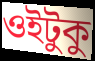
ওইটুকু